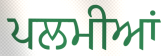
ਪਲਮੀਆਂ